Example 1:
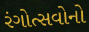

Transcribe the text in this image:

રંગોત્સવોનો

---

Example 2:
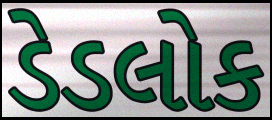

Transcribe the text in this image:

ડેડલોક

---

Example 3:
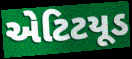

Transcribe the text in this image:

એટિટયૂડ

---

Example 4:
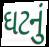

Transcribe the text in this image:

ઘટનું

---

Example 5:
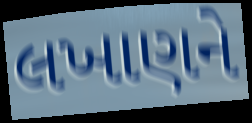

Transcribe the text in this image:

લખાણને